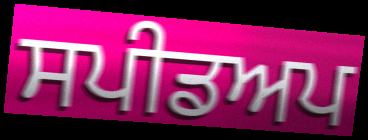
ਸਪੀਡਅਪ